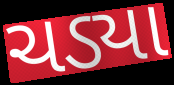
ચડ્યા